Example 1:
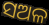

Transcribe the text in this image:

ସଅଳ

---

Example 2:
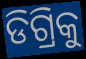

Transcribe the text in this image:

ଡିଗ୍ରିକୁ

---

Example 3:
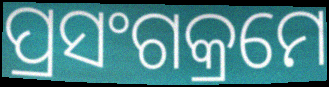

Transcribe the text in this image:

ପ୍ରସଂଗକ୍ରମେ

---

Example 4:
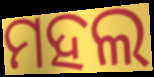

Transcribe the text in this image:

ମହଲ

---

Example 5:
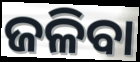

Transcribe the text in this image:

ଜଳିବା